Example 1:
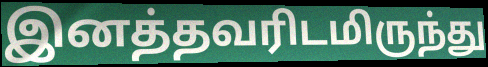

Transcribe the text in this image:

இனத்தவரிடமிருந்து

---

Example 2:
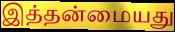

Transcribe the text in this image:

இத்தன்மையது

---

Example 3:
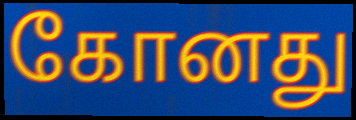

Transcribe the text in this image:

கோனது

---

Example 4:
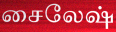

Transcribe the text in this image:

சைலேஷ்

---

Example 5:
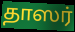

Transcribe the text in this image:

தாஸர்